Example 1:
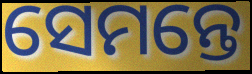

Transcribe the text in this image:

ସେମନ୍ତେ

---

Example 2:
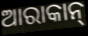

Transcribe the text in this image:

ଆରାକାନ୍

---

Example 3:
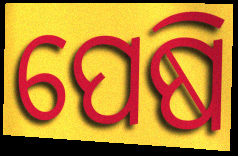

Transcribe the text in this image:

ପେଷି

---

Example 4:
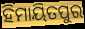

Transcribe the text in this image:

ହିମାୟିତପୁର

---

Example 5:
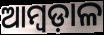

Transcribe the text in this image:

ଆମ୍ବଡ଼ାଳ